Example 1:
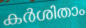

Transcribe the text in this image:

കർശിതാം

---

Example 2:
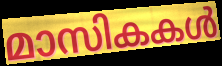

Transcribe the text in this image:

മാസികകൾ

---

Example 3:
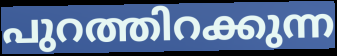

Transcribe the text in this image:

പുറത്തിറക്കുന്ന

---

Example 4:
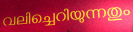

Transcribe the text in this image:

വലിച്ചെറിയുന്നതും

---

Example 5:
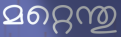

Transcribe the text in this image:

മറ്റെന്തു